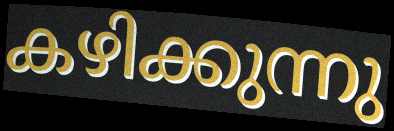
കഴിക്കുന്നു